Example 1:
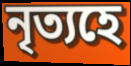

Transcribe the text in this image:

নৃত্যহে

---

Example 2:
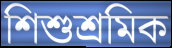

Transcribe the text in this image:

শিশুশ্ৰমিক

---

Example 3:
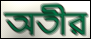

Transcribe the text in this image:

অতীৱ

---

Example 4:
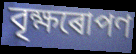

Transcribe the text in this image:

বৃক্ষৰোপণ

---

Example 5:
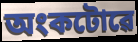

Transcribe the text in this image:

অংকটোৱে